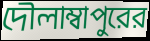
দৌলাম্বাপুরের